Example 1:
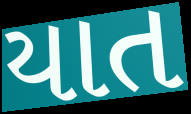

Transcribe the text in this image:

યાત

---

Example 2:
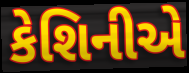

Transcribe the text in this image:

કેશિનીએ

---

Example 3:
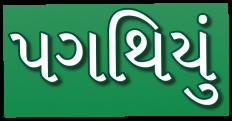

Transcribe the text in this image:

પગથિયું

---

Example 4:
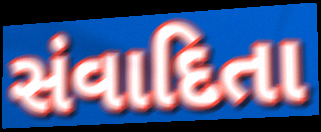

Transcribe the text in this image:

સંવાદિતા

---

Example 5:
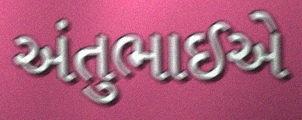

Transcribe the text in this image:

અંતુભાઈએ